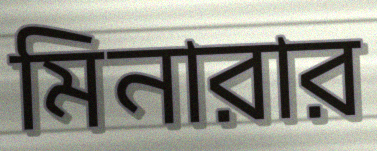
মিনারার